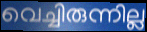
വെച്ചിരുന്നില്ല